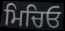
ਮਿਚਿਓ